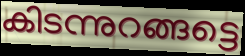
കിടന്നുറങ്ങട്ടെ